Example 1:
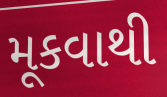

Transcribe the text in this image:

મૂકવાથી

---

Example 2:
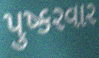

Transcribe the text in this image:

પુષ્કરવાર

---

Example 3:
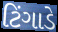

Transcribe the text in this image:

ટિંગાડે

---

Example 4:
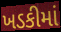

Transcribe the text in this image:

ખડકીમાં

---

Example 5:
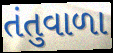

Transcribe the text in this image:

તંતુવાળા